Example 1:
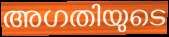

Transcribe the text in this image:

അഗതിയുടെ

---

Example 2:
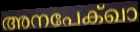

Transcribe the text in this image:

അനപേക്ഖാ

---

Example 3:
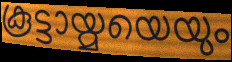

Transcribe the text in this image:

കൂട്ടായ്മയെയും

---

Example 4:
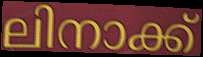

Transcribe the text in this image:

ലിനാക്ക്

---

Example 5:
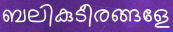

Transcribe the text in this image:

ബലികുടീരങ്ങളേ